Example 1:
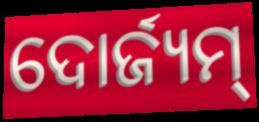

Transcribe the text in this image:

ଦୋର୍ଜ୍ୟମ୍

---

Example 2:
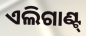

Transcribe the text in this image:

ଏଲିଗାଣ୍ଟ୍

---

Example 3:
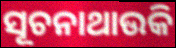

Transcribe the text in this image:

ସୂଚନାଥାଉକି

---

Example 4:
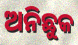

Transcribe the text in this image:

ଅନିଛୁକ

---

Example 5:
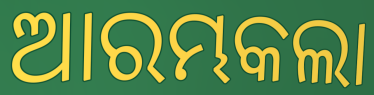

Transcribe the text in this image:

ଆରମ୍ଭକଲା